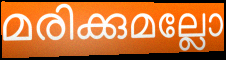
മരിക്കുമല്ലോ